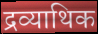
द्रव्याथिक